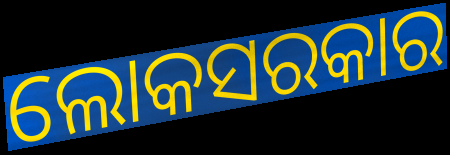
ଲୋକସରକାର